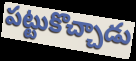
పట్టుకొచ్చాడు